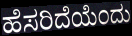
ಹೆಸರಿದೆಯೆಂದು